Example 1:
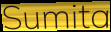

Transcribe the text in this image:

Sumita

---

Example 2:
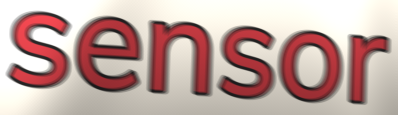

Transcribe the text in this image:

sensor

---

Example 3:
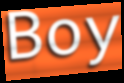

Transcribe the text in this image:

Boy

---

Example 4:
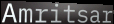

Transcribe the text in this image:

Amritsar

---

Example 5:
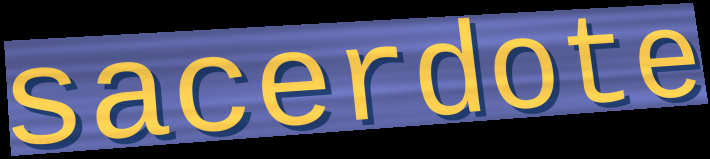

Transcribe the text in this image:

sacerdote